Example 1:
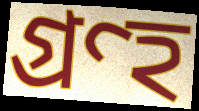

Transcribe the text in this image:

গ্ৰণ্হ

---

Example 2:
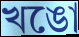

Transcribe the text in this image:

খঙো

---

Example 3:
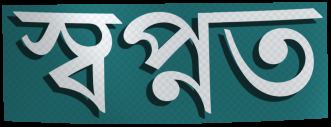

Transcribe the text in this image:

স্বপ্নত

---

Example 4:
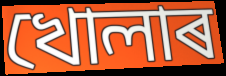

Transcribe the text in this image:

খোলাৰ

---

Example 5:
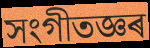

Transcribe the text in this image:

সংগীতজ্ঞৰ